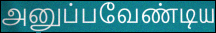
அனுப்பவேண்டிய